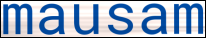
mausam